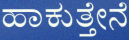
ಹಾಕುತ್ತೇನೆ